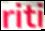
riti